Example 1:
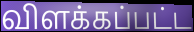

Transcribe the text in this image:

விளக்கப்பட்ட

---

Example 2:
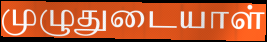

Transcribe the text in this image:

முழுதுடையாள்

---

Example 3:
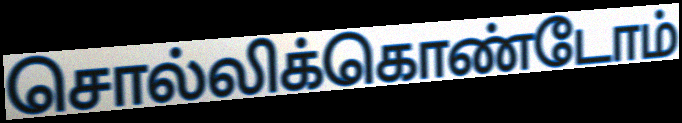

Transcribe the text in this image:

சொல்லிக்கொண்டோம்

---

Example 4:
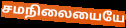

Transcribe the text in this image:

சமநிலையையே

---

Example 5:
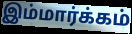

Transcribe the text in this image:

இம்மார்க்கம்